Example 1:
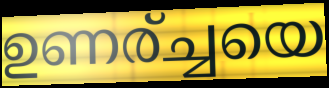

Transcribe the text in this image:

ഉണര്ച്ചയെ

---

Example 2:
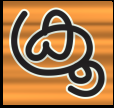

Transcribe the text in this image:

ക്രൂ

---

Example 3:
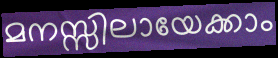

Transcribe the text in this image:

മനസ്സിലായേക്കാം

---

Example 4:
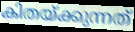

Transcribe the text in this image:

കിതയ്ക്കുന്നത്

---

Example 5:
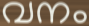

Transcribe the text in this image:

വനം